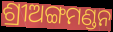
ଶ୍ରୀଅଙ୍ଗମଣ୍ଡନ